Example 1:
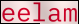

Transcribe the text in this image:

eelam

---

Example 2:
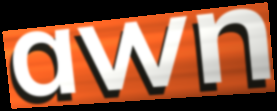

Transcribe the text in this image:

awn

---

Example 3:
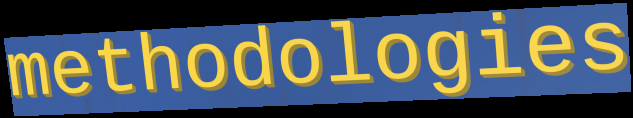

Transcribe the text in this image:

methodologies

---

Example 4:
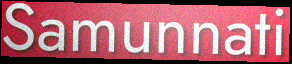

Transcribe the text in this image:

Samunnati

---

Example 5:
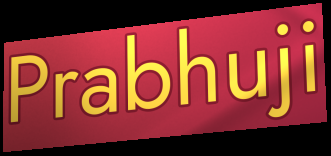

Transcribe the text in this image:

Prabhuji